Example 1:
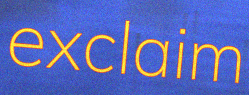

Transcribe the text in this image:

exclaim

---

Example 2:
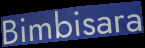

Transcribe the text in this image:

Bimbisara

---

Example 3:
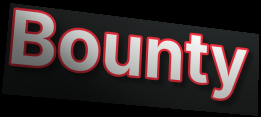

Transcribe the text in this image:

Bounty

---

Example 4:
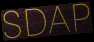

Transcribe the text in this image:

SDAP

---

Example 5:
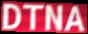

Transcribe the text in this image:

DTNA